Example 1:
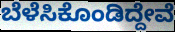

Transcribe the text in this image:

ಬೆಳೆಸಿಕೊಂಡಿದ್ದೇವೆ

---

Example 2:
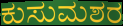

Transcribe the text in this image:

ಕುಸುಮಶರ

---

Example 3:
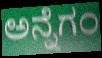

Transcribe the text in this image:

ಅನ್ನೆಗಂ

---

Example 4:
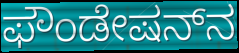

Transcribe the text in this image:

ಫೌಂಡೇಷನ್‌ನ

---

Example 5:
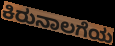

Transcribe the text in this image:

ಕಿರುನಾಲಗೆಯ